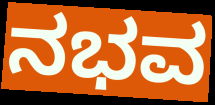
ನಭವ